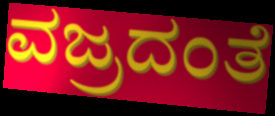
ವಜ್ರದಂತೆ